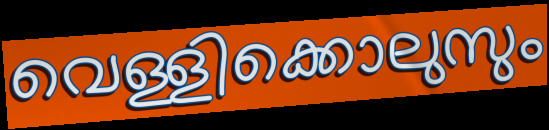
വെള്ളിക്കൊലുസും